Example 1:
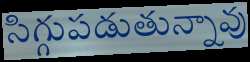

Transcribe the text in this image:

సిగ్గుపడుతున్నావు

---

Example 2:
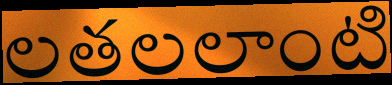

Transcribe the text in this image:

లతలలాంటి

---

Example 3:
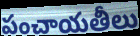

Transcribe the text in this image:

పంచాయతీలు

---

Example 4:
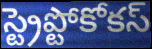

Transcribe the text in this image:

స్ట్రెప్టోకోకస్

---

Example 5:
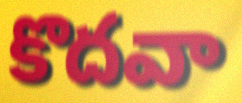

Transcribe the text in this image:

కొదవా